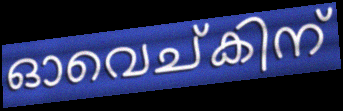
ഓവെച്കിന്